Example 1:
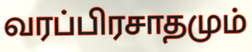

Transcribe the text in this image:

வரப்பிரசாதமும்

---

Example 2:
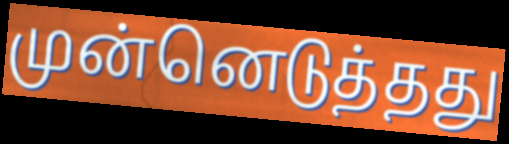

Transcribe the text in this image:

முன்னெடுத்தது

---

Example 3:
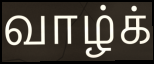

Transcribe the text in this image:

வாழ்க்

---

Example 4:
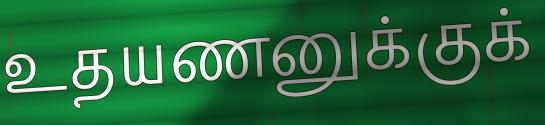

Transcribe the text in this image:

உதயணனுக்குக்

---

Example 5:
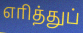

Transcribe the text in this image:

எரித்துப்